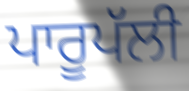
ਪਾਰੂਪੱਲੀ